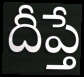
దీప్తే